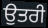
ਉਤਰੀ